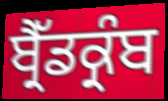
ਬ੍ਰੈੱਡਕ੍ਰੰਬ